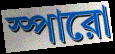
স্পারো